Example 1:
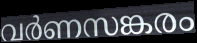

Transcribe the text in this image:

വർണസങ്കരം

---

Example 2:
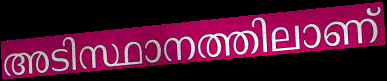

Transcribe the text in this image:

അടിസ്ഥാനത്തിലാണ്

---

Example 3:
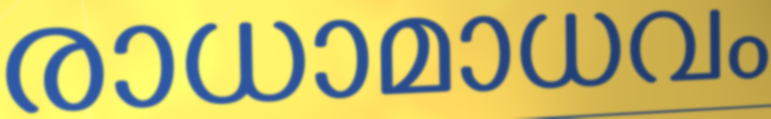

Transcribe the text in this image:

രാധാമാധവം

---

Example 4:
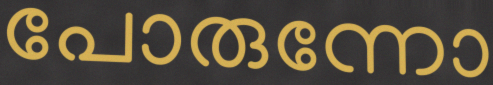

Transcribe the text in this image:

പോരുന്നോ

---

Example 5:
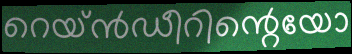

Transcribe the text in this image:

റെയ്ൻഡീറിന്റെയോ